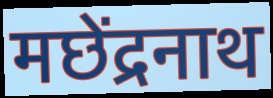
मछेंद्रनाथ